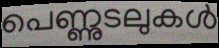
പെണ്ണുടലുകൾ